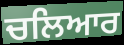
ਚਲਿਆਰ